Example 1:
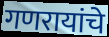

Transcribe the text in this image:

गणरायांचे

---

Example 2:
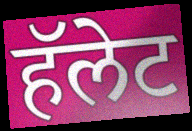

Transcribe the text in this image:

हॅलेट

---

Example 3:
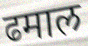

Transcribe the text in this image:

ढमाल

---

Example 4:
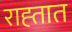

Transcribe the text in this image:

राह्तात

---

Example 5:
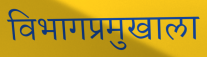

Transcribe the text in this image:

विभागप्रमुखाला